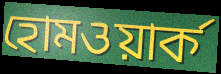
হোমওয়ার্ক